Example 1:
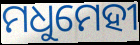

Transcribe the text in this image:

ମଧୁମେହୀ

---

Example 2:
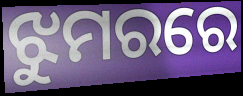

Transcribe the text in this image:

ଝୁମରରେ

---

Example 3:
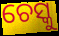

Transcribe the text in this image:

ଚେସ୍କୁ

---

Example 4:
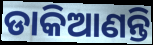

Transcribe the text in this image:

ଡାକିଆଣନ୍ତି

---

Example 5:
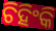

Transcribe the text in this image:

ଚିହିଂକି